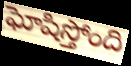
ఘోషిస్తోంది